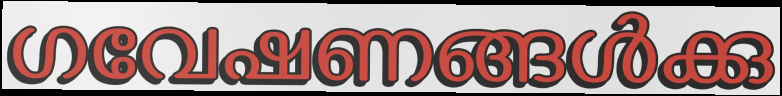
ഗവേഷണങ്ങൾക്കു